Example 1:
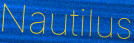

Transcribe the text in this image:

Nautilus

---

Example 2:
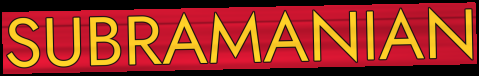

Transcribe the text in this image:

SUBRAMANIAN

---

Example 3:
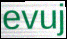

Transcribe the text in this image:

evuj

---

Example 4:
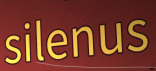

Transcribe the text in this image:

silenus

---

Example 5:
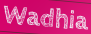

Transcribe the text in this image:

Wadhia